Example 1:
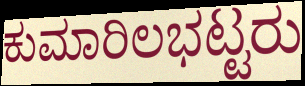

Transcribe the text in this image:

ಕುಮಾರಿಲಭಟ್ಟರು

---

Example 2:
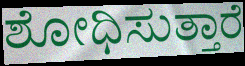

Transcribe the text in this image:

ಶೋಧಿಸುತ್ತಾರೆ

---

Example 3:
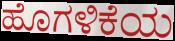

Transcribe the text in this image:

ಹೊಗಳಿಕೆಯ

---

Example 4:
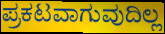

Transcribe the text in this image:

ಪ್ರಕಟವಾಗುವುದಿಲ್ಲ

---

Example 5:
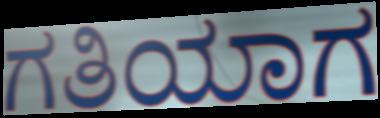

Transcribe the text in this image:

ಗತಿಯಾಗ